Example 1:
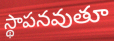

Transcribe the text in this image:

స్థాపనవుతూ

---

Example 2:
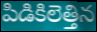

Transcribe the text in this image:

పిడికిలెత్తిన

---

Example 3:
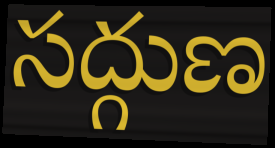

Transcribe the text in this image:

సద్గుణ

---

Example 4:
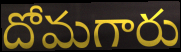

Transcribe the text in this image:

దోమగారు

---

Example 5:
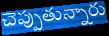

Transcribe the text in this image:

చెప్పుతున్నారు